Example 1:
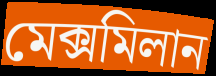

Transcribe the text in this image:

মেক্সমিলান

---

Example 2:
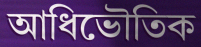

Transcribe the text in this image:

আধিভৌতিক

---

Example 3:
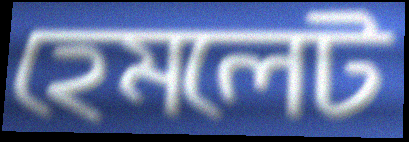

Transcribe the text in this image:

হেমলেট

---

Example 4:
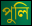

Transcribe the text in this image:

পুলি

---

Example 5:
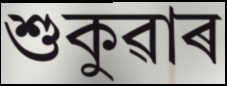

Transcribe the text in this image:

শুকুৱাৰ